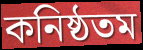
কনিষ্ঠতম